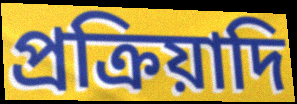
প্রক্রিয়াদি